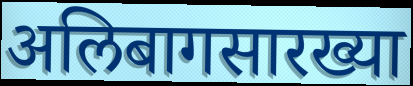
अलिबागसारख्या